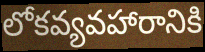
లోకవ్యవహారానికి